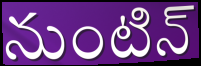
నుంటిన్